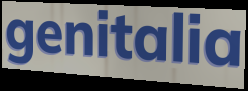
genitalia